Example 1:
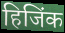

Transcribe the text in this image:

हिजिंक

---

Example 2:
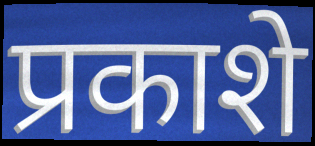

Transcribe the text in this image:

प्रकाशे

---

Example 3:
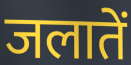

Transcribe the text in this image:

जलातें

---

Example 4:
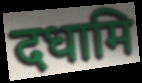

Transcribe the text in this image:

दधामि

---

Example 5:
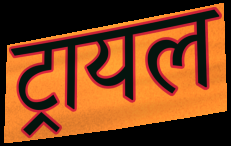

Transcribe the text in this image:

ट्रायल